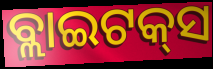
ବ୍ଲାଇଟକ୍‌ସ